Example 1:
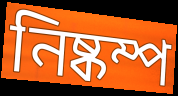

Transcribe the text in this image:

নিষ্কম্প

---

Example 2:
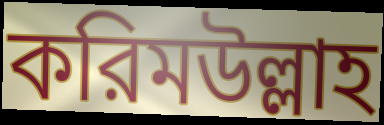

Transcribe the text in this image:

করিমউল্লাহ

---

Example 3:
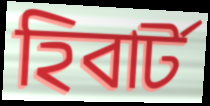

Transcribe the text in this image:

হিবার্ট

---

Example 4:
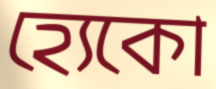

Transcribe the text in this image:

হ্যেকো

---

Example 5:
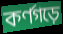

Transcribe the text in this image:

কর্ণগড়ে